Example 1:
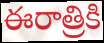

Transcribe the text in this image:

ఈరాత్రికి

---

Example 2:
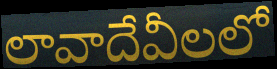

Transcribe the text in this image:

లావాదేవీలలో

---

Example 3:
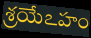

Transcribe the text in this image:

శ్రయేఽహం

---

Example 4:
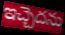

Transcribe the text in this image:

ఇచ్చెదను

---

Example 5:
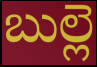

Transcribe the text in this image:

బుల్లె